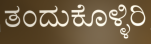
ತಂದುಕೊಳ್ಳಿರಿ